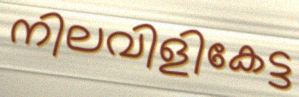
നിലവിളികേട്ട